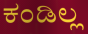
ಕಂಡಿಲ್ಲ